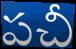
పచీ